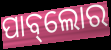
ପାବ୍‌ଲୋର